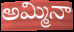
అమ్మినా